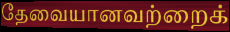
தேவையானவற்றைக்